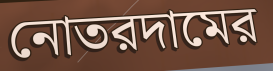
নোতরদামের